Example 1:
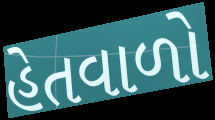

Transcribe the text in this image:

હેતવાળો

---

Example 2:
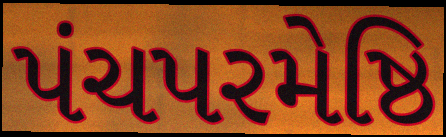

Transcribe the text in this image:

પંચપરમેષ્ઠિ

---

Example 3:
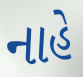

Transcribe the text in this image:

નાહે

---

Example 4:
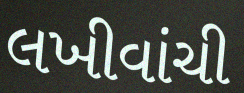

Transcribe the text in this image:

લખીવાંચી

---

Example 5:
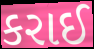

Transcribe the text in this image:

કરાઈ